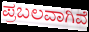
ಪ್ರಬಲವಾಗಿವೆ